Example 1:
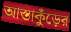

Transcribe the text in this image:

আস্তাকুঁড়ের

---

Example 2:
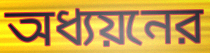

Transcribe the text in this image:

অধ্যয়নের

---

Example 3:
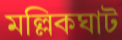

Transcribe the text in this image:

মল্লিকঘাট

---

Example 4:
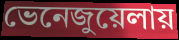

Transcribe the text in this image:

ভেনেজুয়েলায়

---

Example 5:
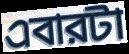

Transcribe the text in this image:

এবারটা